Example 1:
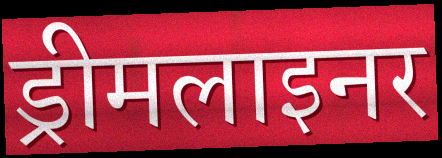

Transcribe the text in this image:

ड्रीमलाइनर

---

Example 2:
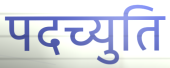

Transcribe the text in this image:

पदच्युति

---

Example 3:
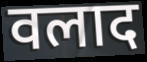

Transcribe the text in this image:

वलाद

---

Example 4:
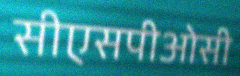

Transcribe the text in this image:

सीएसपीओसी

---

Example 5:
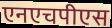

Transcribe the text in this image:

एनएचपीएस